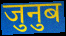
जुनुब